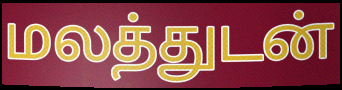
மலத்துடன்